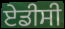
ਏਡੀਸੀ